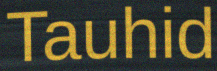
Tauhid